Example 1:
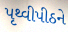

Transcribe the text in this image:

પૃથ્વીપીઠને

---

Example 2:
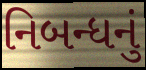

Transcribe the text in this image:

નિબન્ધનું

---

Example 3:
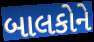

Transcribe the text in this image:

બાલકોને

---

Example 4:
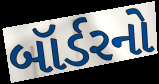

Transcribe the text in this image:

બૉર્ડરનો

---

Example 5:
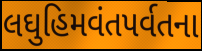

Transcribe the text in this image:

લઘુહિમવંતપર્વતના